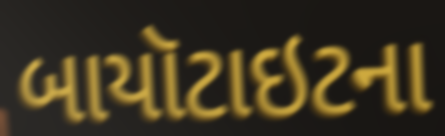
બાયૉટાઇટના